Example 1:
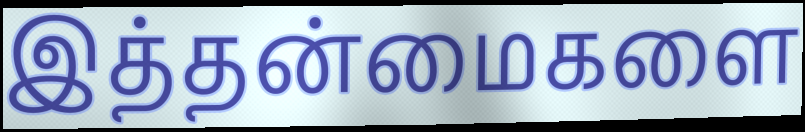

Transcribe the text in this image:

இத்தன்மைகளை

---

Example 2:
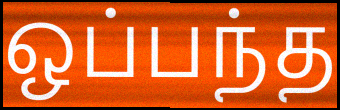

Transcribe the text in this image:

ஒப்பந்த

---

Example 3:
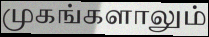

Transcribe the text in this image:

முகங்களாலும்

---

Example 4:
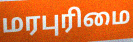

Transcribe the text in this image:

மரபுரிமை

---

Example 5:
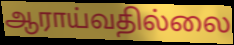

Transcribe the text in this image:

ஆராய்வதில்லை